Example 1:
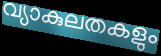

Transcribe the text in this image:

വ്യാകുലതകളും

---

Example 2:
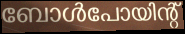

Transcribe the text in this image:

ബോൾപോയിന്റ്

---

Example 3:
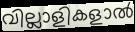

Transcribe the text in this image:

വില്ലാളികളാൽ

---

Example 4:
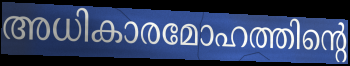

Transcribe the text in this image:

അധികാരമോഹത്തിന്റെ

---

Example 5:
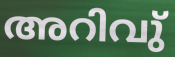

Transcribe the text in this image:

അറിവു്